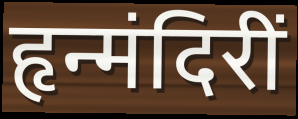
हृन्मंदिरीं